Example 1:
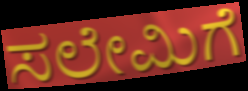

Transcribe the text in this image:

ಸಲೇಮಿಗೆ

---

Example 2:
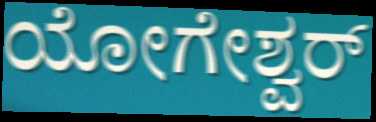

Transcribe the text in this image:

ಯೋಗೇಶ್ವರ್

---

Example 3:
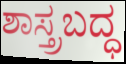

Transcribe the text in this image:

ಶಾಸ್ತ್ರಬದ್ಧ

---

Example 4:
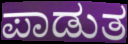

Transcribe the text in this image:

ಪಾಡುತ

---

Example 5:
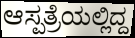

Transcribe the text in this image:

ಆಸ್ಪತ್ರೆಯಲ್ಲಿದ್ದ